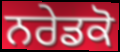
ਨਰੇਡਕੋ